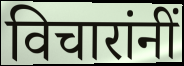
विचारांनीं